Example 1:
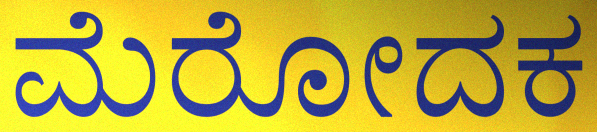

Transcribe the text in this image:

ಮೆರೋದಕ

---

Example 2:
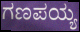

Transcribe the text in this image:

ಗಣಪಯ್ಯ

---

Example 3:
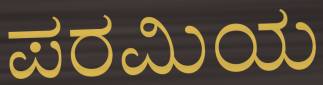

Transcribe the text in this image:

ಪರಮಿಯ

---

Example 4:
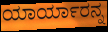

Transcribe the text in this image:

ಯಾರ್ಯಾರನ್ನ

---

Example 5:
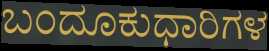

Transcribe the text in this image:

ಬಂದೂಕುಧಾರಿಗಳ